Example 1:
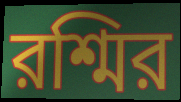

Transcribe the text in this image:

রশ্মির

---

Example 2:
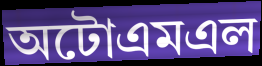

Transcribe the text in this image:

অটোএমএল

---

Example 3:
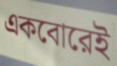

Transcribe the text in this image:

একবোরেই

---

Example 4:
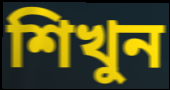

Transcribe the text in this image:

শিখুন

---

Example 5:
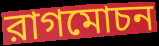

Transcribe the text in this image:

রাগমোচন